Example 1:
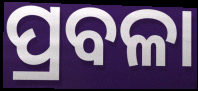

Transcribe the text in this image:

ପ୍ରବଳା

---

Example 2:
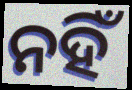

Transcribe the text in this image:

ନହିଁ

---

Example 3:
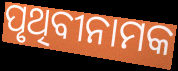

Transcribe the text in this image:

ପୃଥିବୀନାମକ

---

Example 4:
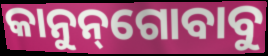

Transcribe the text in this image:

କାନୁନ୍‌ଗୋବାବୁ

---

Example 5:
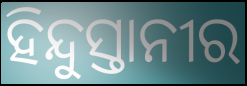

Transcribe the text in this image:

ହିନ୍ଦୁସ୍ତାନୀର